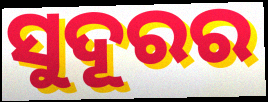
ସୁଦୂରର